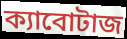
ক্যাবোটাজ